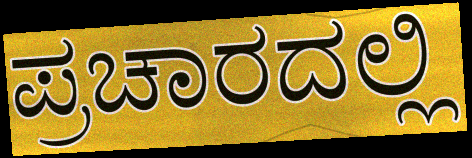
ಪ್ರಚಾರದಲ್ಲಿ